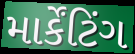
માર્કેંટિંગ